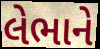
લેભાને